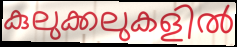
കുലുക്കലുകളിൽ